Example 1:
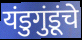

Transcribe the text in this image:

यंडुगुंडूंचे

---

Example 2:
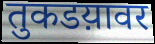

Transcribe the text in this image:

तुकडय़ावर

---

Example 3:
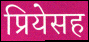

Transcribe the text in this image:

प्रियेसह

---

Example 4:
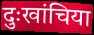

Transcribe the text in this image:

दुःखांचिया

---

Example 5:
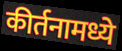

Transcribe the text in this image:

कीर्तनामध्ये